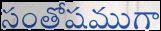
సంతోషముగా